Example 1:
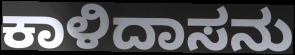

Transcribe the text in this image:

ಕಾಳಿದಾಸನು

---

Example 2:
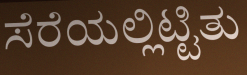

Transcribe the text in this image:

ಸೆರೆಯಲ್ಲಿಟ್ಟಿತು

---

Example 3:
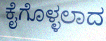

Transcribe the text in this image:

ಕೈಗೊಳ್ಳಲಾದ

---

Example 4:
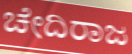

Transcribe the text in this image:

ಚೇದಿರಾಜ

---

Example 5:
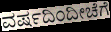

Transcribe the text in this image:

ವರ್ಷದಿಂದೀಚೆಗೆ